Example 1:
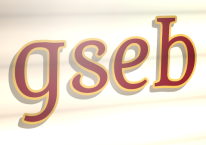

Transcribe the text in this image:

gseb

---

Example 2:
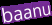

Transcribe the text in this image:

baanu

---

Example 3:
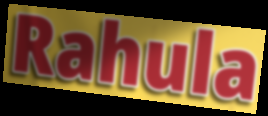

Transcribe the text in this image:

Rahula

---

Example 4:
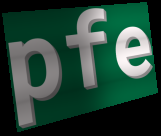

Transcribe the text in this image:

pfe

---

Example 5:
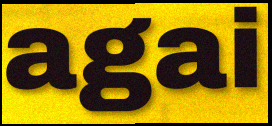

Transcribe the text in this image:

agai